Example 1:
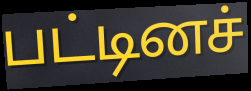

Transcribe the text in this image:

பட்டினச்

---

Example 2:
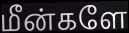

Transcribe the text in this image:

மீன்களே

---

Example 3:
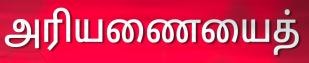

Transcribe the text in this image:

அரியணையைத்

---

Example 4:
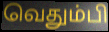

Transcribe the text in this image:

வெதும்பி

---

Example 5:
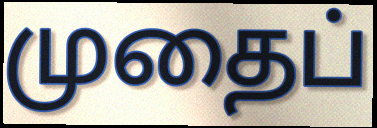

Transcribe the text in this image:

முதைப்